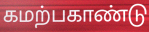
கமற்பகாண்டு